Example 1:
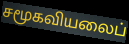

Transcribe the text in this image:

சமூகவியலைப்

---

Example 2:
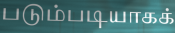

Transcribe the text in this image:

படும்படியாகக்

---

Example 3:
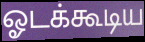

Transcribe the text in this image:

ஓடக்கூடிய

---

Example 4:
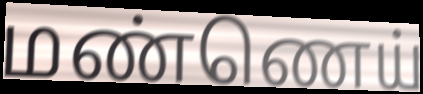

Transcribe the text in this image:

மண்ணெய்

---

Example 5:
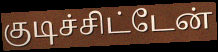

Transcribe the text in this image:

குடிச்சிட்டேன்